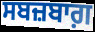
ਸਬਜ਼ਬਾਗ਼